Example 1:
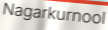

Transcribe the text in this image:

Nagarkurnool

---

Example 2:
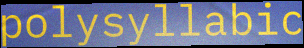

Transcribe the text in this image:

polysyllabic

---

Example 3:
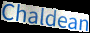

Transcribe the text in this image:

Chaldean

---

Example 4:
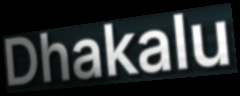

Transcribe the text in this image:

Dhakalu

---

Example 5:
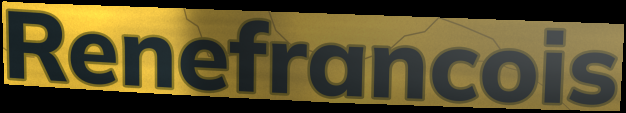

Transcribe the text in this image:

Renefrancois